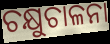
ଚକ୍ଷୁଚାଳନା